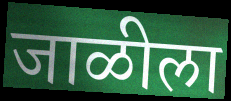
जाळीला